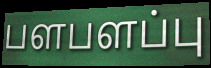
பளபளப்பு